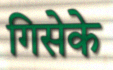
गिसेके